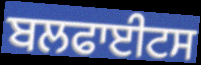
ਬਲਫਾਈਟਸ